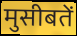
मुसीबतें